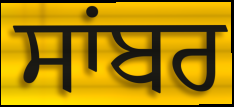
ਸਾਂਬਰ